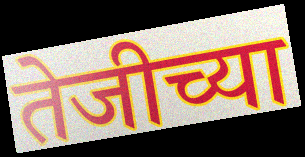
तेजीच्या